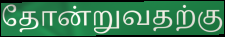
தோன்றுவதற்கு